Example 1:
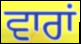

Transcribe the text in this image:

ਵਾਰਾਂ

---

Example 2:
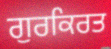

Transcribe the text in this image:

ਗੁਰਕਿਰਤ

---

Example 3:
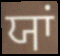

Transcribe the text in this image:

ਯਾਂ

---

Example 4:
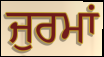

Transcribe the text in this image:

ਜੁਰਮਾਂ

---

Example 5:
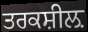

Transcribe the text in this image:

ਤਰਕਸ਼ੀਲ਼